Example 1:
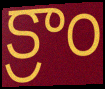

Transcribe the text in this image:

క్రాం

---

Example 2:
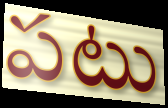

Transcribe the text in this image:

పటు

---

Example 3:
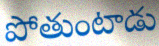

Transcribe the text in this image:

పోతుంటాడు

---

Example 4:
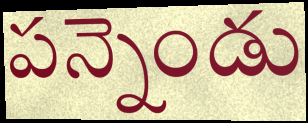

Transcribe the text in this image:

పన్నెండు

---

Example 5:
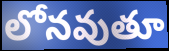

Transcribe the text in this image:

లోనవుతూ